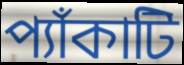
প্যাঁকাটি